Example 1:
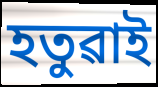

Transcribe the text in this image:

হতুৱাই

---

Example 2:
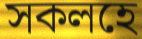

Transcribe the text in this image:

সকলহে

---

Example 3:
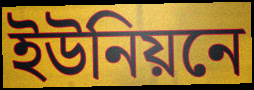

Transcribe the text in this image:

ইউনিয়নে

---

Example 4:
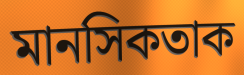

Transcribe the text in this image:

মানসিকতাক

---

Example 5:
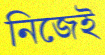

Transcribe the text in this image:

নিজেই